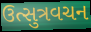
ઉત્સુત્રવચન